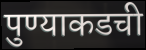
पुण्याकडची